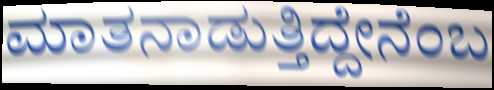
ಮಾತನಾಡುತ್ತಿದ್ದೇನೆಂಬ